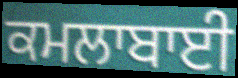
ਕਮਲਾਬਾਈ